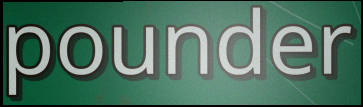
pounder